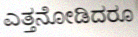
ಎತ್ತನೋಡಿದರೂ